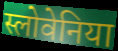
स्लोवेनिया